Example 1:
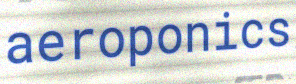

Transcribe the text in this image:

aeroponics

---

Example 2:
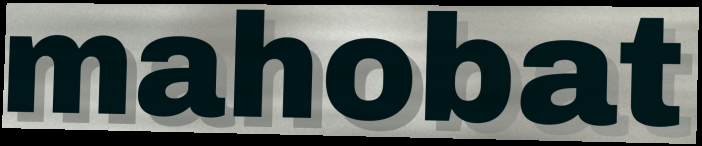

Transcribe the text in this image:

mahobat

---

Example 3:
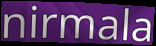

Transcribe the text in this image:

nirmala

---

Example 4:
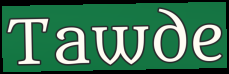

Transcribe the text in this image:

Tawde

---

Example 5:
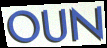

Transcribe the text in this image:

OUN